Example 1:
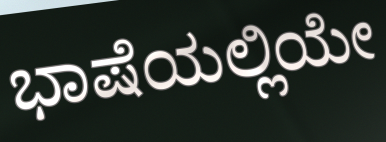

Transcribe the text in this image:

ಭಾಷೆಯಲ್ಲಿಯೇ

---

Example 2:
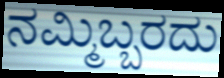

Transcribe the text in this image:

ನಮ್ಮಿಬ್ಬರದು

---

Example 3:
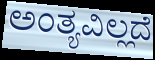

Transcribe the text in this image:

ಅಂತ್ಯವಿಲ್ಲದೆ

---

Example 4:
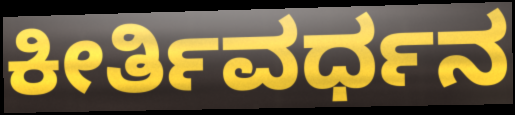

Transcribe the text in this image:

ಕೀರ್ತಿವರ್ಧನ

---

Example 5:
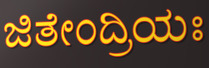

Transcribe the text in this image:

ಜಿತೇಂದ್ರಿಯಃ